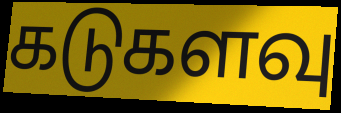
கடுகளவு